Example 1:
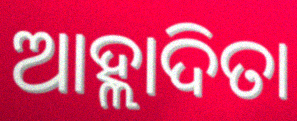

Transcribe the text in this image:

ଆହ୍ଲାଦିତା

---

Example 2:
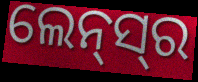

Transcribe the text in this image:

ଲେନ୍‌ସ୍‍ର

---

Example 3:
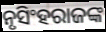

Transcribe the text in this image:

ନୃସିଂହରାଜଙ୍କ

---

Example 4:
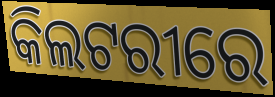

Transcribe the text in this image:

କିଲଟରୀରେ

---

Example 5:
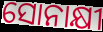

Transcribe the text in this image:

ସୋନାକ୍ଷୀ